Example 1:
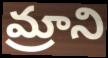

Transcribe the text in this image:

మ్రాని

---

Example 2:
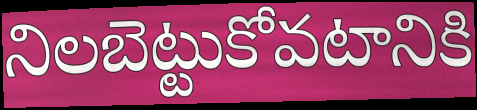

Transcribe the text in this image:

నిలబెట్టుకోవటానికి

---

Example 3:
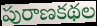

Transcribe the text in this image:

పురాణకథల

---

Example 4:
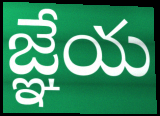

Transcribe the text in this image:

జ్ఞేయ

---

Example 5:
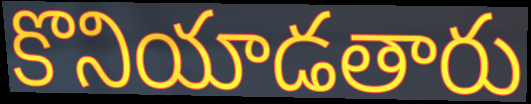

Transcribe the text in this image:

కొనియాడతారు